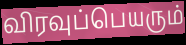
விரவுப்பெயரும்